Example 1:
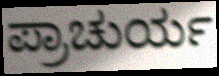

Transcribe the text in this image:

ಪ್ರಾಚುರ್ಯ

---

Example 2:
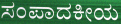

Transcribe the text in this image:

ಸಂಪಾದಕೀಯ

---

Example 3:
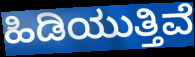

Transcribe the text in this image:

ಹಿಡಿಯುತ್ತಿವೆ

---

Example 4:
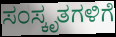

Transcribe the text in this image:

ಸಂಸ್ಕೃತಗಳಿಗೆ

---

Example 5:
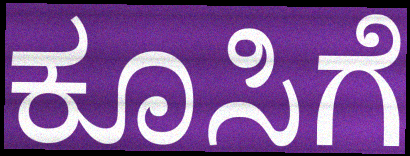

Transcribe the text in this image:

ಕೂಸಿಗೆ